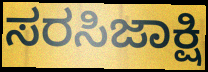
ಸರಸಿಜಾಕ್ಷಿ